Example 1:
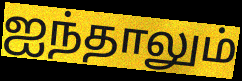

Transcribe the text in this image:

ஐந்தாலும்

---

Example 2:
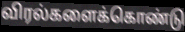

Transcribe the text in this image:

விரல்களைக்கொண்டு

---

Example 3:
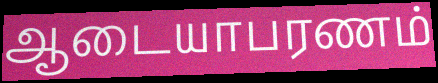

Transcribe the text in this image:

ஆடையாபரணம்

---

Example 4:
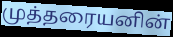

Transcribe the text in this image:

முத்தரையனின்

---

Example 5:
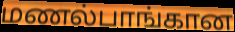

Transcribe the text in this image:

மணல்பாங்கான